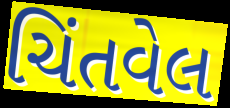
ચિંતવેલ